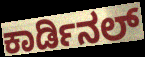
ಕಾರ್ಡಿನಲ್